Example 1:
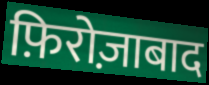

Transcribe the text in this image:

फ़िरोज़ाबाद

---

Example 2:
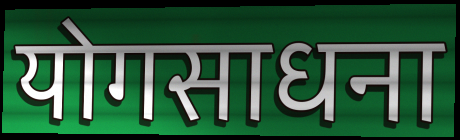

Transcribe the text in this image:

योगसाधना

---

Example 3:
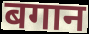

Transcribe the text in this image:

बगान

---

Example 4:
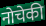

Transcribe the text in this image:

नोचेकी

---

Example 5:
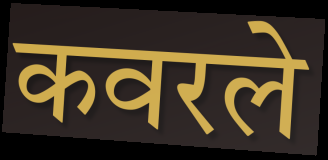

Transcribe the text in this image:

कवरले